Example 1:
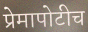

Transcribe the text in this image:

प्रेमापोटीच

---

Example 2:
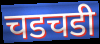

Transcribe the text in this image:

चडचडी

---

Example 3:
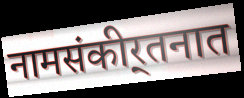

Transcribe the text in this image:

नामसंकीर्तनात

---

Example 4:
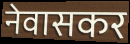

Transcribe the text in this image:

नेवासकर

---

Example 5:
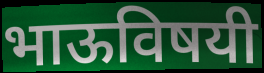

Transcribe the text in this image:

भाऊविषयी